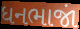
ધનભાજાં